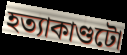
হত্যাকাণ্ডটো